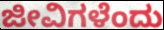
ಜೀವಿಗಳೆಂದು